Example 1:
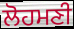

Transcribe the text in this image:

ਲੋਹਮਣੀ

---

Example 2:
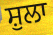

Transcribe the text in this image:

ਸ਼ੁਲਾ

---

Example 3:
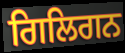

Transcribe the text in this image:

ਗਿਲਿਗਨ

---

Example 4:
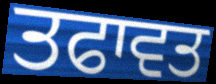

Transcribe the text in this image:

ਤਫਾਵਤ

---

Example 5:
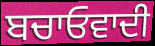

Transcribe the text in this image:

ਬਚਾਓਵਾਦੀ